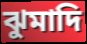
ঝুমাদি